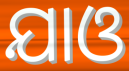
ଯାଓ